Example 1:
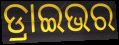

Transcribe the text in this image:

ଡ୍ରାଇଭର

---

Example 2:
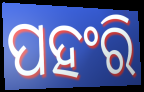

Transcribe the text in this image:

ପହଂରି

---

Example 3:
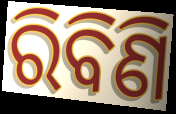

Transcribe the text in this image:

ରିବିଣି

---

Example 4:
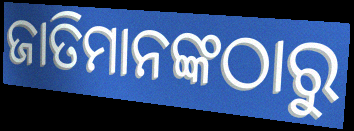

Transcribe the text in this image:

ଜାତିମାନଙ୍କଠାରୁ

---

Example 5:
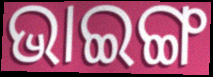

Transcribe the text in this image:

ଭାଇଙ୍ଗ